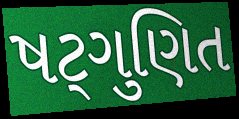
ષટ્ગુણિત